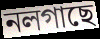
নলগাছে